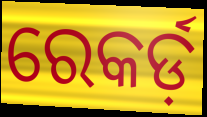
ରେକର୍ଡ଼